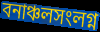
বনাঞ্চলসংলগ্ন